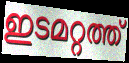
ഇടമറ്റത്ത്